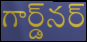
గార్డ్‌నర్